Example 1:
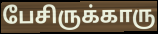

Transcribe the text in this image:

பேசிருக்காரு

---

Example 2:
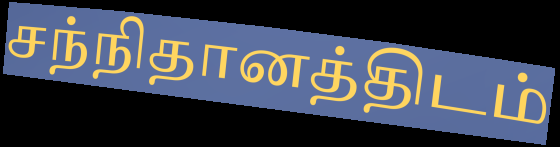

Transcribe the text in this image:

சந்நிதானத்திடம்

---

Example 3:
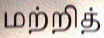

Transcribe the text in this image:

மற்றித்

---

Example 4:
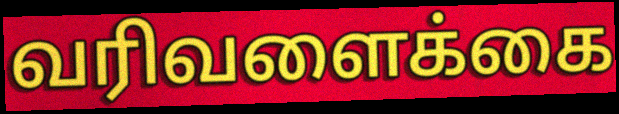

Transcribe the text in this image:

வரிவளைக்கை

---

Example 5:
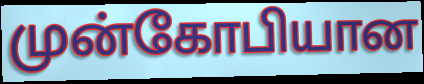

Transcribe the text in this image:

முன்கோபியான